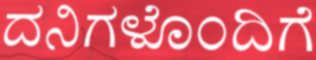
ದನಿಗಳೊಂದಿಗೆ